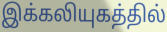
இக்கலியுகத்தில்